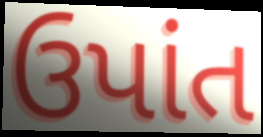
ઉપાંત